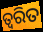
ତ୍ଵରିତ